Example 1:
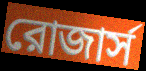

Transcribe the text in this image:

রোজার্স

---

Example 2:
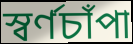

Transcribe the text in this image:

স্বর্ণচাঁপা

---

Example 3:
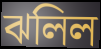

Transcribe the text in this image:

ঝলিল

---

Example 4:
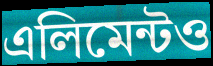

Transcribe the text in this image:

এলিমেন্টও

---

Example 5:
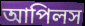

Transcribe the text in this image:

আপিলস